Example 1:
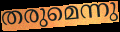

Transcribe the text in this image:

തരുമെന്നു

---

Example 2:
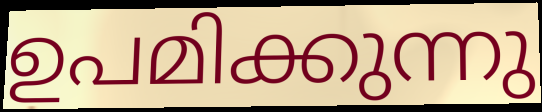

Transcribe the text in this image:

ഉപമിക്കുന്നു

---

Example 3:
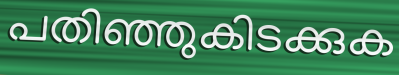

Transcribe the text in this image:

പതിഞ്ഞുകിടക്കുക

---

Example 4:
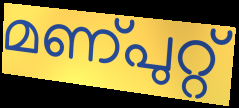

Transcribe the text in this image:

മണ്പുറ്റ്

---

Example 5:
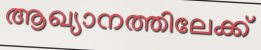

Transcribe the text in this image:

ആഖ്യാനത്തിലേക്ക്